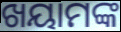
ଖୟାମଙ୍କ